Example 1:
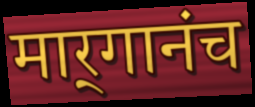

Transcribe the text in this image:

मार्गानंच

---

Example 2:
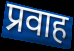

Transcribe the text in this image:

प्रवाह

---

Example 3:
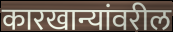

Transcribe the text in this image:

कारखान्यांवरील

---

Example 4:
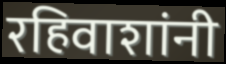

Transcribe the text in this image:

रहिवाशांनी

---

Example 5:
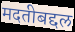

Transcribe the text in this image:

मदतीबद्दल